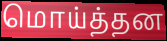
மொய்த்தன